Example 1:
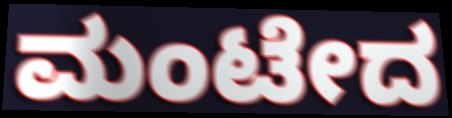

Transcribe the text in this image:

ಮಂಟೇದ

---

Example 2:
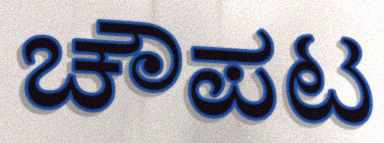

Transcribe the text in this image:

ಚೌಪಟ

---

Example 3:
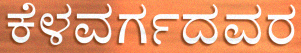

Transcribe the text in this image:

ಕೆಳವರ್ಗದವರ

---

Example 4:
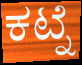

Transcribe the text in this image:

ಕಟ್ನೆ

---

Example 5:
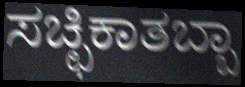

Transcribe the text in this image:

ಸಚ್ಛಿಕಾತಬ್ಬಾ